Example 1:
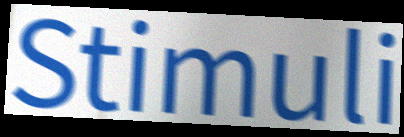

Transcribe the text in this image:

Stimuli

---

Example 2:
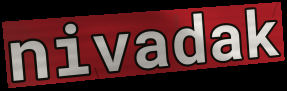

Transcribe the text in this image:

nivadak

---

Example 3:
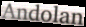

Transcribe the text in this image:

Andolan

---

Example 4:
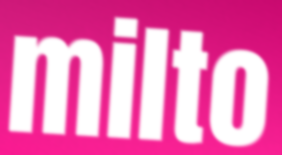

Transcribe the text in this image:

milto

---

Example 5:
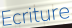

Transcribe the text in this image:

Ecriture